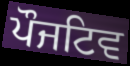
ਪੌਜਟਿਵ